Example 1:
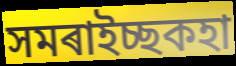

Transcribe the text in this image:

সমৰাইচ্ছকহা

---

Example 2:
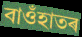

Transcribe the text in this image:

বাওঁহাতৰ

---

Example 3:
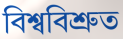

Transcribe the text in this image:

বিশ্ববিশ্ৰুত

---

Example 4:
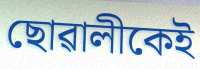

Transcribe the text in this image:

ছোৱালীকেই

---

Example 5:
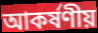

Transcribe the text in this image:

আকৰ্ষণীয়